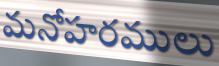
మనోహరములు